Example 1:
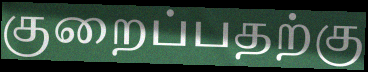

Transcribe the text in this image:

குறைப்பதற்கு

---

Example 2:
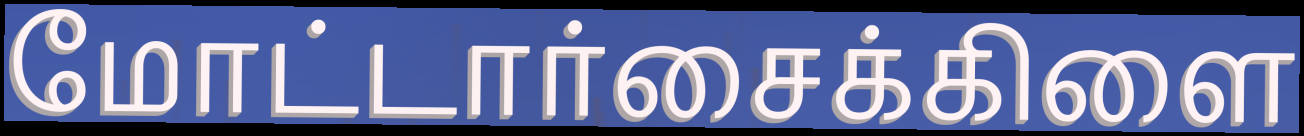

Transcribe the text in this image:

மோட்டார்சைக்கிளை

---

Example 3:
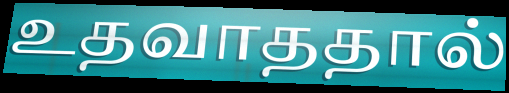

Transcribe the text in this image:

உதவாததால்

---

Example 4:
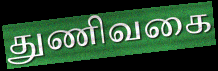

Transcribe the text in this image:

துணிவகை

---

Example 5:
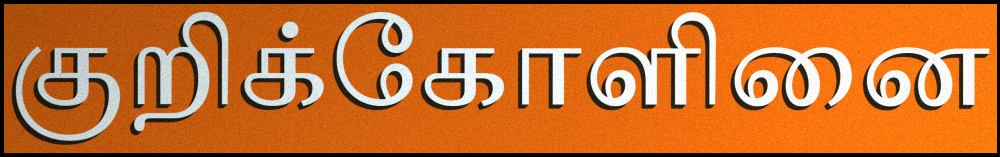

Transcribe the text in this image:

குறிக்கோளினை